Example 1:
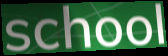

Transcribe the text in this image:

school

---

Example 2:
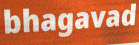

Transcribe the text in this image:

bhagavad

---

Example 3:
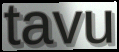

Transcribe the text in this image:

tavu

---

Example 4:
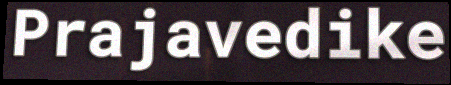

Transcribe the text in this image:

Prajavedike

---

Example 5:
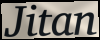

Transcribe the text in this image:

Jitan